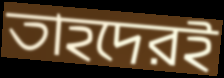
তাহদেরই